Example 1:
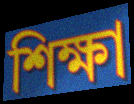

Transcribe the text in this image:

শিক্ষা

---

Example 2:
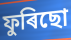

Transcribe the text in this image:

ফুৰিছো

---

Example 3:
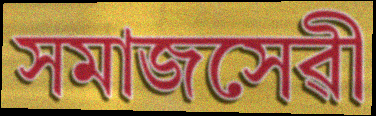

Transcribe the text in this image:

সমাজসেৱী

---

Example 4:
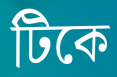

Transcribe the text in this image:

টিকে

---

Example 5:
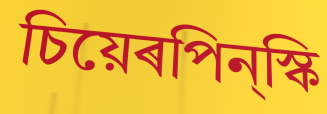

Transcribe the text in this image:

চিয়েৰপিন্‌স্কি